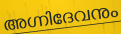
അഗ്നിദേവനും